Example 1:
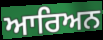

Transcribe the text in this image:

ਆਰਿਅਨ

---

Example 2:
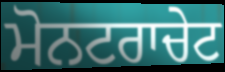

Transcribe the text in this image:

ਮੋਨਟਰਾਚੇਟ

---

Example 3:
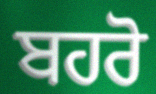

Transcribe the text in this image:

ਬਹਰੋ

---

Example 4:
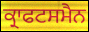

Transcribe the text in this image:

ਕ੍ਰਾਫਟਸਮੈਨ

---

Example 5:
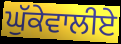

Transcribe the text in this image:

ਘੁੱਕੇਵਾਲੀਏ